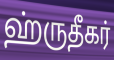
ஹ்ருதீகர்